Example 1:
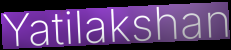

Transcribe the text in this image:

Yatilakshan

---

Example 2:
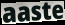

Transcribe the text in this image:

aaste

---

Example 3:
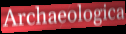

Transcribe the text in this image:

Archaeologica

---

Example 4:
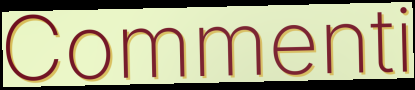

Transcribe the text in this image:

Commenti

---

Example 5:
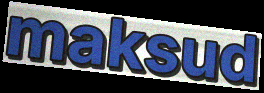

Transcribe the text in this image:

maksud